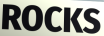
ROCKS